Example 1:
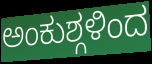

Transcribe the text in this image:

ಅಂಕುಶ್ಗಳಿಂದ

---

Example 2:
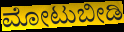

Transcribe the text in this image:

ಮೋಟುಬೀಡಿ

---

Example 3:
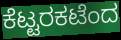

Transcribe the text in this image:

ಕೆಟ್ಟರಕಟೆಂದ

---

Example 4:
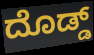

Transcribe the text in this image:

ದೊಡ್ಡ್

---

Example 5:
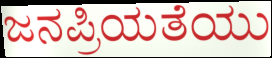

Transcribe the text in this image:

ಜನಪ್ರಿಯತೆಯು